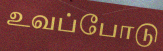
உவப்போடு